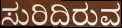
ಸುರಿದಿರುವ